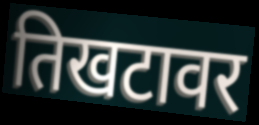
तिखटावर